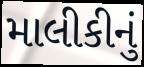
માલીકીનું